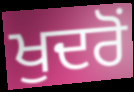
ਖੁਦਰੋਂ